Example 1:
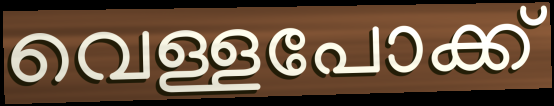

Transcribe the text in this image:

വെള്ളപോക്ക്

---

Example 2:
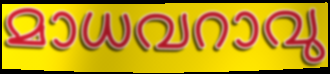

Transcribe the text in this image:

മാധവറാവു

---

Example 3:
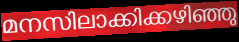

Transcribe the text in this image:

മനസിലാക്കിക്കഴിഞ്ഞു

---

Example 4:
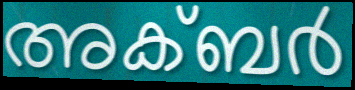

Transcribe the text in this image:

അക്ബർ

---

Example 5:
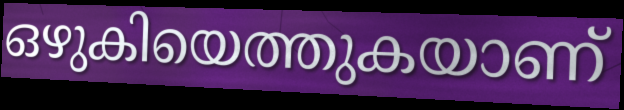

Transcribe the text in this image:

ഒഴുകിയെത്തുകയാണ്